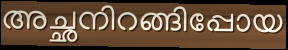
അച്ഛനിറങ്ങിപ്പോയ